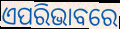
ଏପରିଭାବରେ